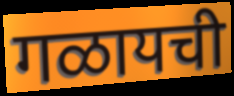
गळायची